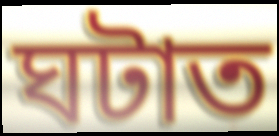
ঘটাত